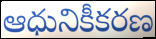
ఆధునికీకరణ